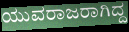
ಯುವರಾಜರಾಗಿದ್ದ